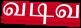
வடிவ